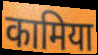
कामिया